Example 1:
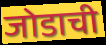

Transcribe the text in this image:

जोडाची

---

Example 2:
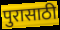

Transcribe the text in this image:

पुरासाठी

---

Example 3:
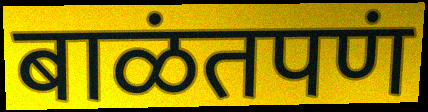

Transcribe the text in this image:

बाळंतपणं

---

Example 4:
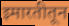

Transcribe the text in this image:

इमारतीतून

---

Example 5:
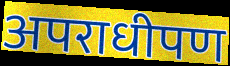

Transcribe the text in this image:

अपराधीपण